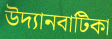
উদ্যানবাটিকা